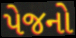
પેજનો